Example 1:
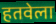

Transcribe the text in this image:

हतवेला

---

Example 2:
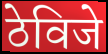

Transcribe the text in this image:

ठेविजे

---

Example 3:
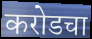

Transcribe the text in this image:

करोडचा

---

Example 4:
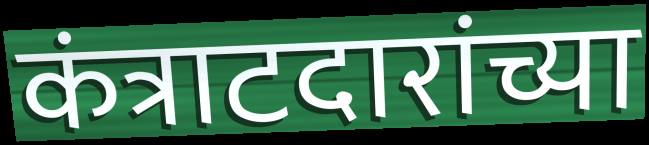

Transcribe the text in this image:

कंत्राटदारांच्या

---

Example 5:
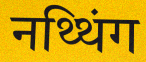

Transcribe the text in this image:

नथ्थिंग